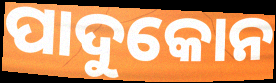
ପାଦୁକୋନ